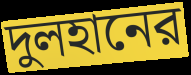
দুলহানের